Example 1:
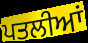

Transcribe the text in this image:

ਪਤਲੀਆਂ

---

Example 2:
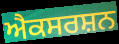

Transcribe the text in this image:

ਐਕਸਰਸ਼ਨ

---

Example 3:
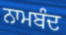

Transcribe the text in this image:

ਨਾਮਬੰਦ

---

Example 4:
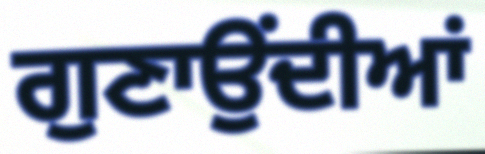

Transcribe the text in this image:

ਗੁਣਾਉਂਦੀਆਂ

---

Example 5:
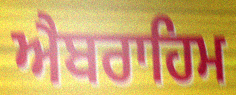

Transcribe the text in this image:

ਐਬਰਾਹਿਮ